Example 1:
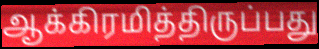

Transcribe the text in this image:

ஆக்கிரமித்திருப்பது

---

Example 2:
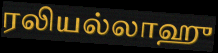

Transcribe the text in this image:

ரலியல்லாஹு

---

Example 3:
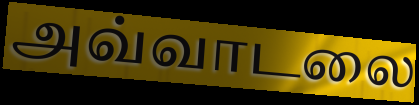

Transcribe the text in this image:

அவ்வாடலை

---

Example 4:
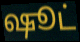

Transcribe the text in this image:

ஷூட்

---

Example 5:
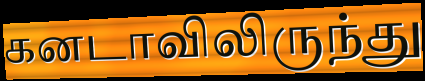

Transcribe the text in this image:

கனடாவிலிருந்து